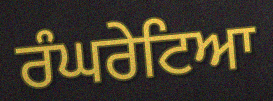
ਰੰਘਰੇਟਿਆ